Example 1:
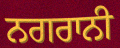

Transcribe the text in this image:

ਨਗਰਾਨੀ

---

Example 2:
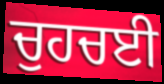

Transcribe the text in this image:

ਚੁਹਚਈ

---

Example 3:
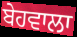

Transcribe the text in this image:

ਬੇਹਵਾਲਾ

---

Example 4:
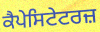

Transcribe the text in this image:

ਕੈਪੇਸਿਟੇਟਰਜ਼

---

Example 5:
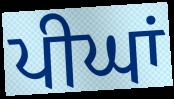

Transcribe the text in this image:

ਪੀਘਾਂ